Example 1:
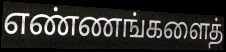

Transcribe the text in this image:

எண்ணங்களைத்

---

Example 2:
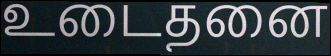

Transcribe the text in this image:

உடைதனை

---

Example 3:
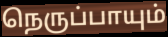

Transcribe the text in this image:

நெருப்பாயும்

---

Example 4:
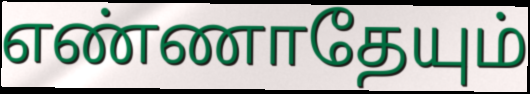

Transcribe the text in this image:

எண்ணாதேயும்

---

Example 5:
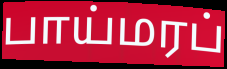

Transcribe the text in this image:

பாய்மரப்